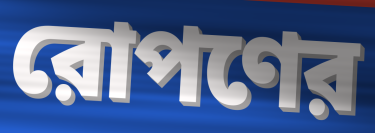
রোপণের